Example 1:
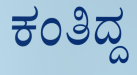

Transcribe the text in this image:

ಕಂತಿದ್ದ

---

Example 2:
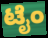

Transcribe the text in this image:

ಟೈಂ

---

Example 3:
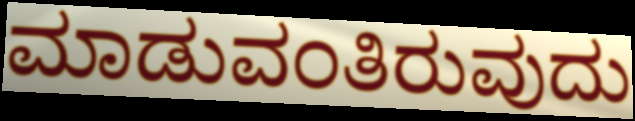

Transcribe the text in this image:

ಮಾಡುವಂತಿರುವುದು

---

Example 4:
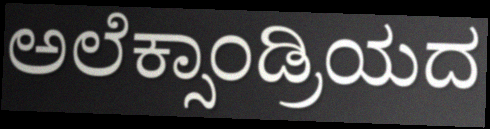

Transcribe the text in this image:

ಅಲೆಕ್ಸಾಂಡ್ರಿಯದ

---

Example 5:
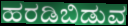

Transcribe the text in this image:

ಹರಡಿಬಿಡುವ